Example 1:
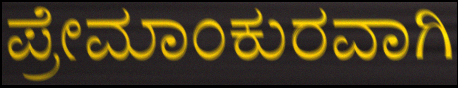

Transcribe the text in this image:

ಪ್ರೇಮಾಂಕುರವಾಗಿ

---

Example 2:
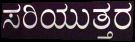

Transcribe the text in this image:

ಸರಿಯುತ್ತರ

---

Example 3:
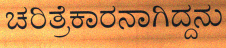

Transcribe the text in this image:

ಚರಿತ್ರೆಕಾರನಾಗಿದ್ದನು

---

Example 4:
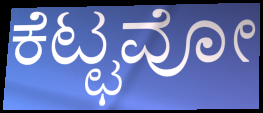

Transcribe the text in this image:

ಕೆಟ್ಟವೋ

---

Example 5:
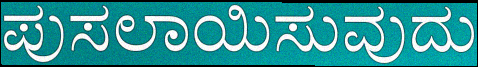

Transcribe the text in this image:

ಪುಸಲಾಯಿಸುವುದು